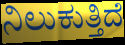
ನಿಲುಕುತ್ತಿದೆ